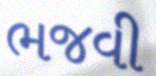
ભજવી